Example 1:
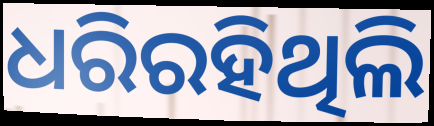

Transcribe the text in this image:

ଧରିରହିଥିଲି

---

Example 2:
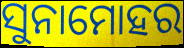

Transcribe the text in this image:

ସୁନାମୋହର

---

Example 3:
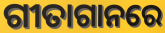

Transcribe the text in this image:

ଗୀତାଗାନରେ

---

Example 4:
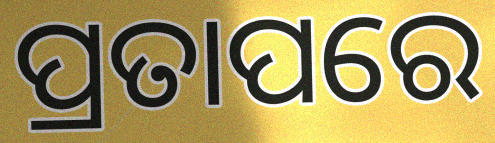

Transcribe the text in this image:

ପ୍ରତାପରେ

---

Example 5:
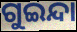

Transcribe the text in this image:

ଗୁଇନ୍ଦା